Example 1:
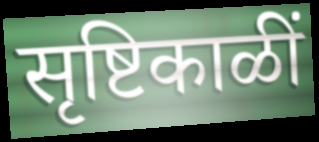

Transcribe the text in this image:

सृष्टिकाळीं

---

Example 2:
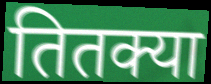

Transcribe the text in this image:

तितक्या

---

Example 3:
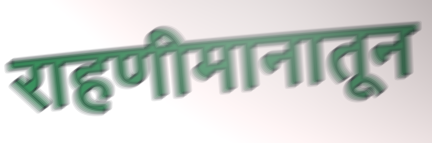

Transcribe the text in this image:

राहणीमानातून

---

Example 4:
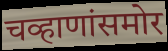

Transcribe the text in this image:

चव्हाणांसमोर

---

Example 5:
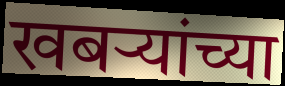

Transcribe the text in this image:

खबऱ्यांच्या